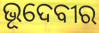
ଭୂଦେବୀର